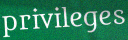
privileges